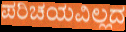
ಪರಿಚಯವಿಲ್ಲದ